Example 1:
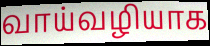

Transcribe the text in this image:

வாய்வழியாக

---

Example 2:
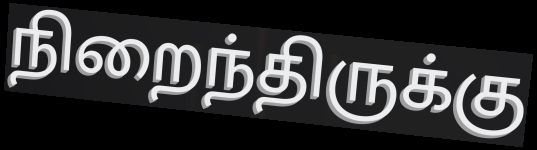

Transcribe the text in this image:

நிறைந்திருக்கு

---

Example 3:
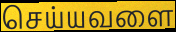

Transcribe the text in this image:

செய்யவளை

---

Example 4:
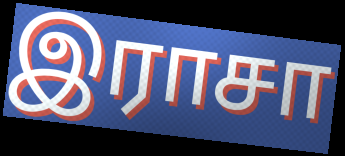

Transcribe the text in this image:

இராசா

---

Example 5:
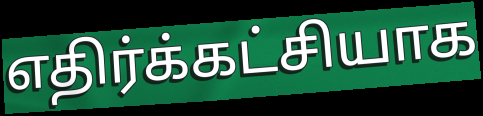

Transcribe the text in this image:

எதிர்க்கட்சியாக